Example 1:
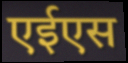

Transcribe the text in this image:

एईएस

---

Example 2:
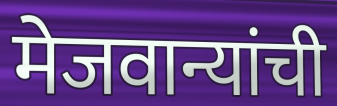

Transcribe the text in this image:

मेजवान्यांची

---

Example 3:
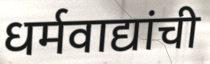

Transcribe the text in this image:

धर्मवाद्यांची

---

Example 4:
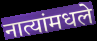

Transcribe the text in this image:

नात्यांमधले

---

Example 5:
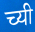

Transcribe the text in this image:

च्यी